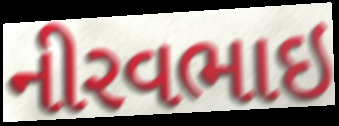
નીરવભાઇ